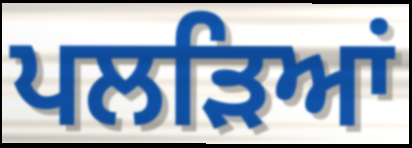
ਪਲੜਿਆਂ